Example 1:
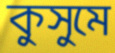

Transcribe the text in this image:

কুসুমে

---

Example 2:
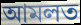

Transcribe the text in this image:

আমলত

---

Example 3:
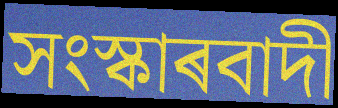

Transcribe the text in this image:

সংস্কাৰবাদী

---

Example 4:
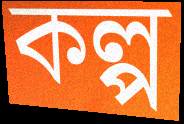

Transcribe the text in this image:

কল্প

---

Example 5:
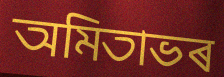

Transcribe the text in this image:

অমিতাভৰ